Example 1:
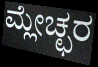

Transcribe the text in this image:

ಮ್ಲೇಚ್ಛರ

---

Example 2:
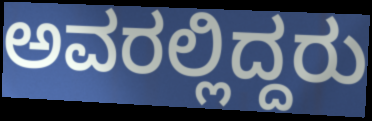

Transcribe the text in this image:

ಅವರಲ್ಲಿದ್ದರು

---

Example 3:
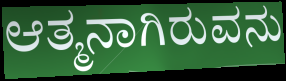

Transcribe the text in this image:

ಆತ್ಮನಾಗಿರುವನು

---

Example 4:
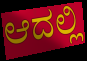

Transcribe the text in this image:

ಆದಲ್ಲಿ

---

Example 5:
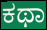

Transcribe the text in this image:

ಕಥಾ